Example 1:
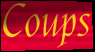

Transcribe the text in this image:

Coups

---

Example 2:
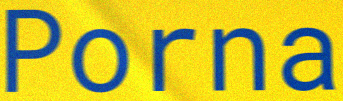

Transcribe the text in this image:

Porna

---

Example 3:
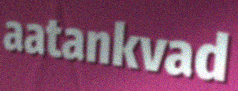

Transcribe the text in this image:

aatankvad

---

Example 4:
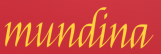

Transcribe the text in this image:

mundina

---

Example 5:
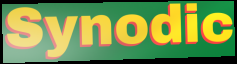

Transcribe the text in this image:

Synodic